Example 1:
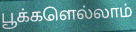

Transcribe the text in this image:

பூக்களெல்லாம்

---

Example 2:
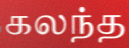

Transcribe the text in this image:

கலந்த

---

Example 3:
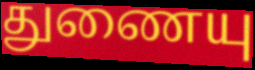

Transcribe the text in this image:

துணையு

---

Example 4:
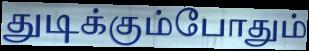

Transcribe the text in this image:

துடிக்கும்போதும்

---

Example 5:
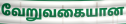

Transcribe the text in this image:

வேறுவகையான